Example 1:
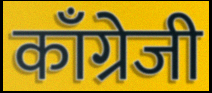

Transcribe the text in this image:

काँग्रेजी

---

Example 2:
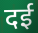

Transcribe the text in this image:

दई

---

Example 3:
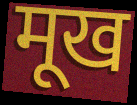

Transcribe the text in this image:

मूख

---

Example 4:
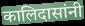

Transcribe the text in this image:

कालिदासांनी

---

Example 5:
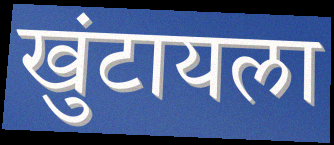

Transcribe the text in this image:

खुंटायला